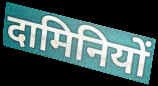
दामिनियों